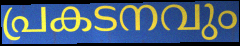
പ്രകടനവും